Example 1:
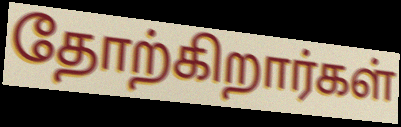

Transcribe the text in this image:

தோற்கிறார்கள்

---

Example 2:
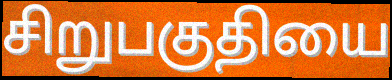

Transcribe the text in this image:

சிறுபகுதியை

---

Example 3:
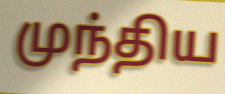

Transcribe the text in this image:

முந்திய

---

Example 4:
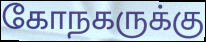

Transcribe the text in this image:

கோநகருக்கு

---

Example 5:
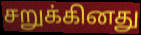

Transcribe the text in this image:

சறுக்கினது